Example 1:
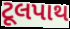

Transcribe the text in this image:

ટૂલપાથ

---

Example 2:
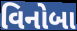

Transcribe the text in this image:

વિનોબા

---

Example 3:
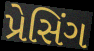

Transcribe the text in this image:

પ્રેસિંગ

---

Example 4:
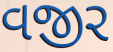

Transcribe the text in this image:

વજીર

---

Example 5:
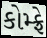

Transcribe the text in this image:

કોમ્ફ્રે